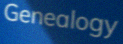
Genealogy